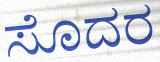
ಸೊದರ